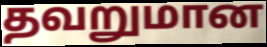
தவறுமான